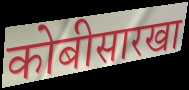
कोबीसारखा